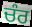
ਚੰਰ